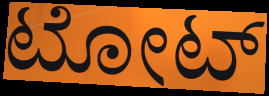
ಟೋಟ್